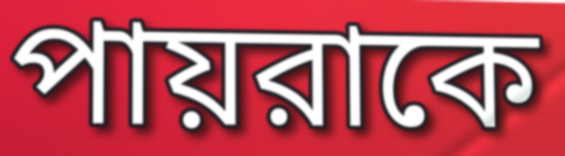
পায়রাকে